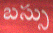
బస్సు